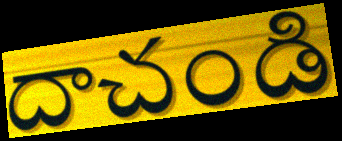
దాచండి